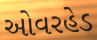
ઓવરહેડ